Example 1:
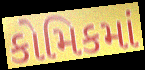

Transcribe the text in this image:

કોમિકમાં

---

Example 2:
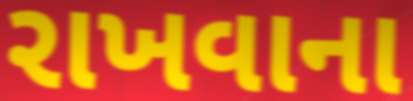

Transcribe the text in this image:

રાખવાના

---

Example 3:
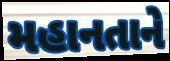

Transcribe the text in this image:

મહાનતાને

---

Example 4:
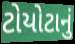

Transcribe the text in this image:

ટોયોટાનું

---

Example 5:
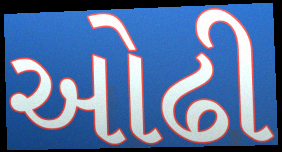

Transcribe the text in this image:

ઓઢી